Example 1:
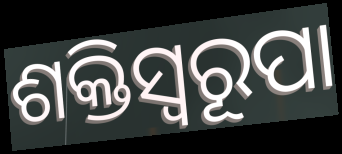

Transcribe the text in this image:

ଶକ୍ତିସ୍ବରୂପା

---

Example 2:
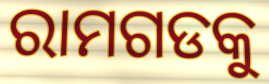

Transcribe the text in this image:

ରାମଗଡକୁ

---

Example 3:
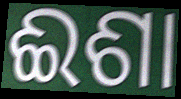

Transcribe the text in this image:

ଈଶା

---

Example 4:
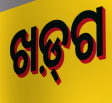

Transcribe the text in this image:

ଖଡ଼୍‌ଗ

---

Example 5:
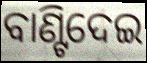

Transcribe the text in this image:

ବାଣ୍ଟିଦେଇ